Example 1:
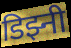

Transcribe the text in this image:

डिझ्नी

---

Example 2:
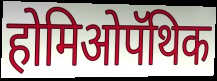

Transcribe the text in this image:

होमिओपॅथिक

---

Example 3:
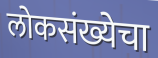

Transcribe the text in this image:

लोकसंख्येचा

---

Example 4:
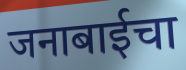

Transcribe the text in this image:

जनाबाईचा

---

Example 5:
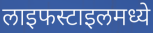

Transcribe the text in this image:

लाइफस्टाइलमध्ये